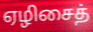
ஏழிசைத்